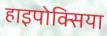
हाइपोक्सिया